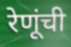
रेणूंची